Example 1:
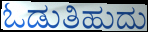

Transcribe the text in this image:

ಓಡುತಿಹುದು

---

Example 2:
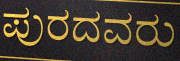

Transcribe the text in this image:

ಪುರದವರು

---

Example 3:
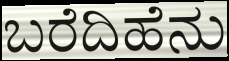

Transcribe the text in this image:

ಬರೆದಿಹೆನು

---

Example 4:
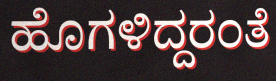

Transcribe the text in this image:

ಹೊಗಳಿದ್ದರಂತೆ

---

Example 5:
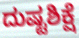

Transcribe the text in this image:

ದುಷ್ಟಶಿಕ್ಷೆ